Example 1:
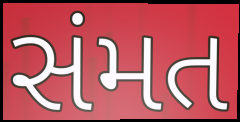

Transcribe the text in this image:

સંમત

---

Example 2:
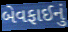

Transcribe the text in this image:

બેવફાઈનું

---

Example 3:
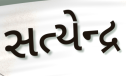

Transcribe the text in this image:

સત્યેન્દ્ર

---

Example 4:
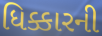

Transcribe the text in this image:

ધિક્કારની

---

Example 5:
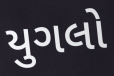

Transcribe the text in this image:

યુગલો